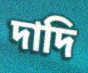
দাদি